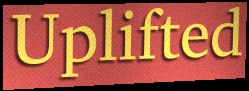
Uplifted